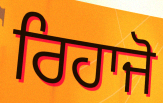
ਰਿਹਾਜੋ